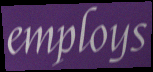
employs